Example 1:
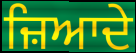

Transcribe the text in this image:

ਜ਼ਿਆਦੇ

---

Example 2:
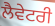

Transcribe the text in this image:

ਲੈਵੇਟਰੀ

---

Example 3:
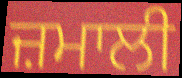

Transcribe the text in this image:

ਜ਼ਮਾਲੀ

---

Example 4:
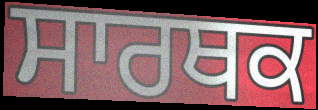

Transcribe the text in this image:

ਸਾਰਥਕ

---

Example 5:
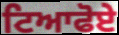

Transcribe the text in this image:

ਟਿਆਫੋਏ